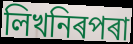
লিখনিৰপৰা